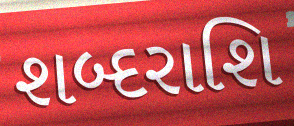
શબ્દરાશિ